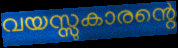
വയസ്സുകാരന്റെ